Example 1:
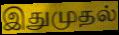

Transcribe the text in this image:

இதுமுதல்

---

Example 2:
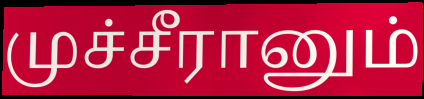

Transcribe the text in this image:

முச்சீரானும்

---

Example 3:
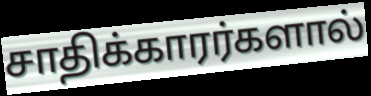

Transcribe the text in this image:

சாதிக்காரர்களால்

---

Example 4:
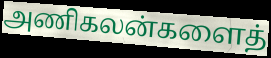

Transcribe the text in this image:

அணிகலன்களைத்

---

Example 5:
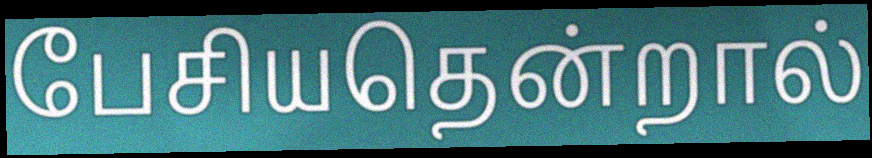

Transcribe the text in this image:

பேசியதென்றால்